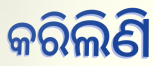
କରିଲିଣି